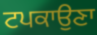
ਟਪਕਾਉਣਾ